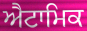
ਐਟਾਮਿਕ